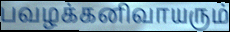
பவழக்கனிவாயரும்